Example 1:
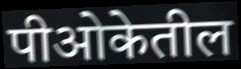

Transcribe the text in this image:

पीओकेतील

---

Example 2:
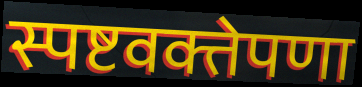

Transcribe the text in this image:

स्पष्टवक्तेपणा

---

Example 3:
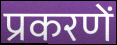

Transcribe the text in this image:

प्रकरणें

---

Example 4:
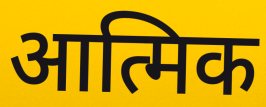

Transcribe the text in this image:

आत्मिक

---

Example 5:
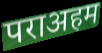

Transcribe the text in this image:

पराअहम